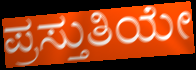
ಪ್ರಸ್ತುತಿಯೇ